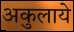
अकुलाये